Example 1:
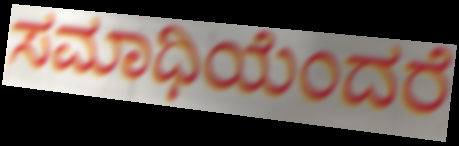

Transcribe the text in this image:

ಸಮಾಧಿಯೆಂದರೆ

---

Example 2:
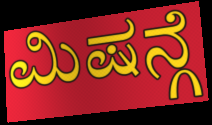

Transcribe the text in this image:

ಮಿಷನ್ಗೆ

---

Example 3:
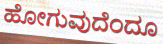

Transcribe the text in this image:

ಹೋಗುವುದೆಂದೂ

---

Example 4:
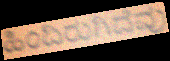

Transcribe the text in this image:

ಹಿಂದಿರುಗಿದೆವು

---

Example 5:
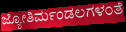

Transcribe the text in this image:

ಜ್ಯೋತಿರ್ಮಂಡಲಗಳಂತೆ